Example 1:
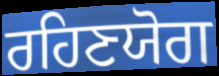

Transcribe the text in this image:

ਰਹਿਣਯੋਗ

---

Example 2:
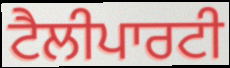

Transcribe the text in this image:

ਟੈਲੀਪਾਰਟੀ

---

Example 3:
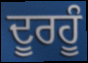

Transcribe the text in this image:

ਦੂਰਹੂੰ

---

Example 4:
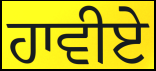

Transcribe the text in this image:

ਹਾਵੀਏ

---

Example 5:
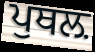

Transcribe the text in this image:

ਪੁਥਲ਼